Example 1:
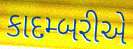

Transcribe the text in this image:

કાદમ્બરીએ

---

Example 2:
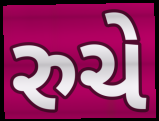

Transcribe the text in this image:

રુચે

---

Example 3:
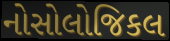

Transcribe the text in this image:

નોસોલોજિકલ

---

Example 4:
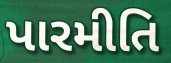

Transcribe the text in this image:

પારમીતિ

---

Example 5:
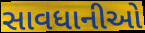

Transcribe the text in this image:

સાવધાનીઓ